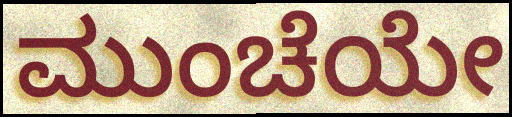
ಮುಂಚೆಯೇ